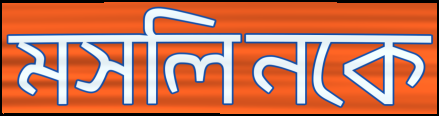
মসলিনকে